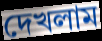
দেখলাম